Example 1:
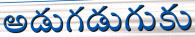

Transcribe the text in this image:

అడుగడుగుకు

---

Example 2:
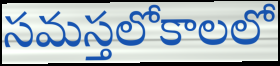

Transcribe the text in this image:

సమస్తలోకాలలో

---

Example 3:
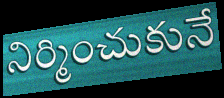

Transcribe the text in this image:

నిర్మించుకునే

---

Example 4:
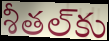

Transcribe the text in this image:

శీతల్‌కు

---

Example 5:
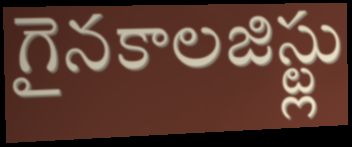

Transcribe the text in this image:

గైనకాలజిస్ట్లు